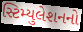
સ્ટિમ્યુલેશનનો